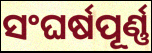
ସଂଘର୍ଷପୂର୍ଣ୍ଣ